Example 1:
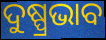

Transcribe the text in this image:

ଦୁଷ୍ପ୍ରଭାବ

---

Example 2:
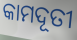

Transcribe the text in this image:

କାମଦୂତୀ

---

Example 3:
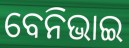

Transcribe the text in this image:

ବେନିଭାଇ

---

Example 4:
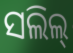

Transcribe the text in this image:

ସଲିଲ୍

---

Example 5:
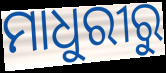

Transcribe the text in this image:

ମାଧୁରୀରୁ